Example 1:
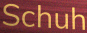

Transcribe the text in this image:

Schuh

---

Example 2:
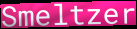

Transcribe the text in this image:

Smeltzer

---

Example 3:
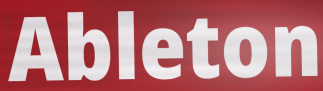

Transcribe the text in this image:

Ableton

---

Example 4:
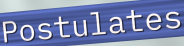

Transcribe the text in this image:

Postulates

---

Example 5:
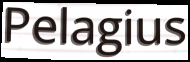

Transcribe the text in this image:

Pelagius